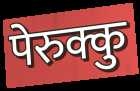
पेरुक्कु